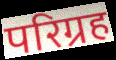
परिग्रह